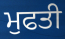
ਮੁਫਤੀ